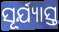
ସୂର୍ଯ୍ୟାସ୍ତ